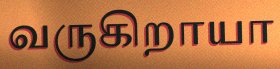
வருகிறாயா